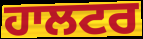
ਹਾਲਟਰ